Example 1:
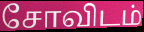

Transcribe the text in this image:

சோவிடம்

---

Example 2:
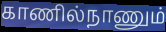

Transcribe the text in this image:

காணில்நாணும்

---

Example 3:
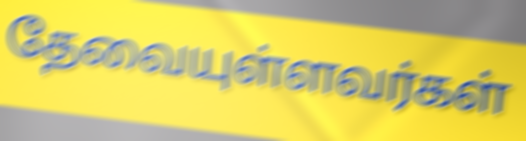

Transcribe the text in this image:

தேவையுள்ளவர்கள்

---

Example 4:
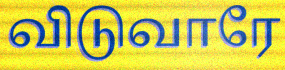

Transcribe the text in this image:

விடுவாரே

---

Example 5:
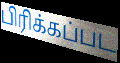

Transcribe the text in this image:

பிரிக்கப்பட